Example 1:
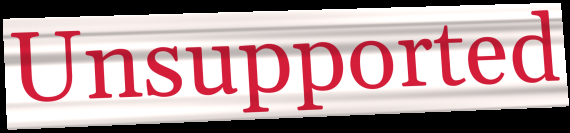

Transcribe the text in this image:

Unsupported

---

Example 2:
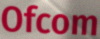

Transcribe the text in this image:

Ofcom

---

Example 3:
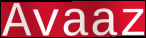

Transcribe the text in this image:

Avaaz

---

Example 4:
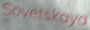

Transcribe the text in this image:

Sovetskaya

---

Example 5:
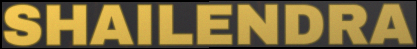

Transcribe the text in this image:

SHAILENDRA